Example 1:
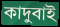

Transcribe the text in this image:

কাদুবাই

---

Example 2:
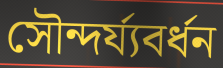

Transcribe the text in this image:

সৌন্দৰ্য্যবৰ্ধন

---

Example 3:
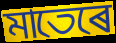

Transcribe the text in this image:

মাতেৰে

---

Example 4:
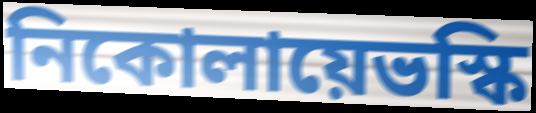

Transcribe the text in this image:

নিকোলায়েভস্কি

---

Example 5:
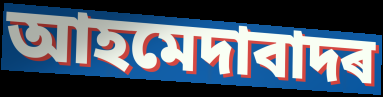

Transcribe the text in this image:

আহমেদাবাদৰ